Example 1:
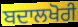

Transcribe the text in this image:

ਬਦਾਲਖੋਰੀ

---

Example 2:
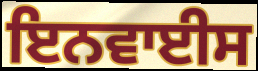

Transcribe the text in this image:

ਇਨਵਾਈਸ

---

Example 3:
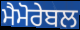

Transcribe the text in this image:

ਮੈਮੋਰੇਬਲ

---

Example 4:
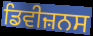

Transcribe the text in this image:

ਡਿਵੀਜ਼ਨਸ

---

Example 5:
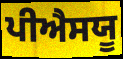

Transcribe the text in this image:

ਪੀਐਸਯੂ